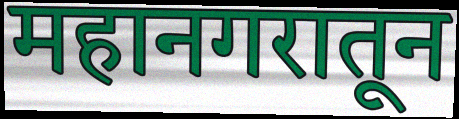
महानगरातून